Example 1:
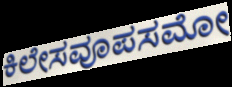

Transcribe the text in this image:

ಕಿಲೇಸವೂಪಸಮೋ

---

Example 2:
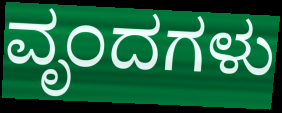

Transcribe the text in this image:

ವೃಂದಗಳು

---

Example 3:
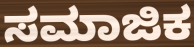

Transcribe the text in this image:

ಸಮಾಜಿಕ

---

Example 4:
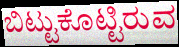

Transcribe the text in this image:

ಬಿಟ್ಟುಕೊಟ್ಟಿರುವ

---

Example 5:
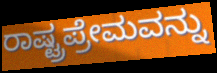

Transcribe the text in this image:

ರಾಷ್ಟ್ರಪ್ರೇಮವನ್ನು